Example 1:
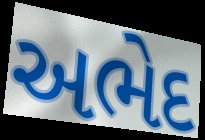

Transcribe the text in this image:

અભેદ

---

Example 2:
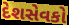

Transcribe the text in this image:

દેશસેવકો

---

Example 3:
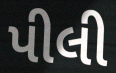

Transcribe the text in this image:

પીલી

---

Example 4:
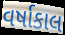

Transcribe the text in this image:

વર્ષાકાલ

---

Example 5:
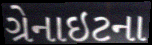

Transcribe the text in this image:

ગ્રેનાઇટના